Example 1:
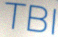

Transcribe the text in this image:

TBI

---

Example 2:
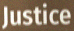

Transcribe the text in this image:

Justice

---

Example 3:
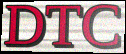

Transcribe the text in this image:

DTC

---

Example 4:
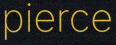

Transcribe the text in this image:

pierce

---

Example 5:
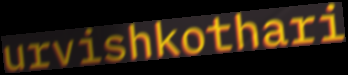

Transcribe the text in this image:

urvishkothari